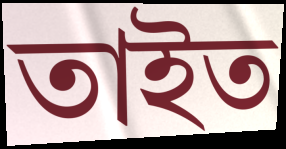
তাইত